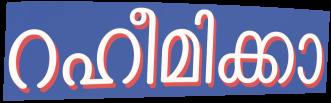
റഹീമിക്കാ